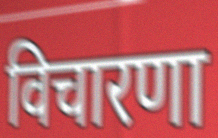
विचारणा